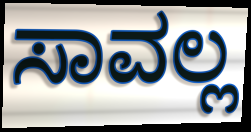
ಸಾವಲ್ಲ